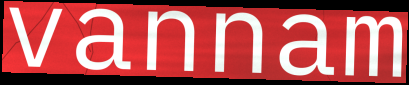
vannam